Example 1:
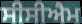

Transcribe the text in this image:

ਸੀਸੀਐਮ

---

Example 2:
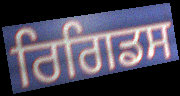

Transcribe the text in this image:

ਰਿਗਿਡਸ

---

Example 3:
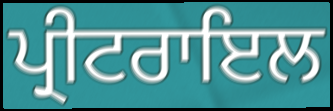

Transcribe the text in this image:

ਪ੍ਰੀਟਰਾਇਲ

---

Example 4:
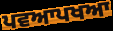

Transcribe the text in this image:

ਪਵਆਪਖਆ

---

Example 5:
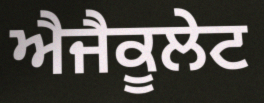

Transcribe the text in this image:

ਐਜੈਕੂਲੇਟ